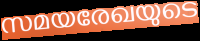
സമയരേഖയുടെ